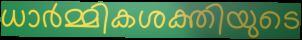
ധാർമ്മികശക്തിയുടെ